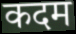
कदम